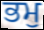
ਭਮੁ